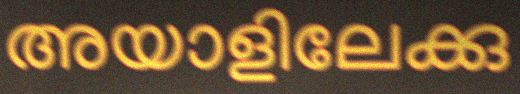
അയാളിലേക്കു